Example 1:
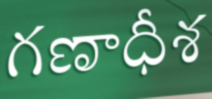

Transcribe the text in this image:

గణాధీశ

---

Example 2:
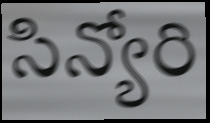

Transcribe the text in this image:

సిన్యోరి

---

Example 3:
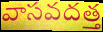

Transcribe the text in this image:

వాసవదత్త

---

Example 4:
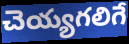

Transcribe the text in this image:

చెయ్యగలిగే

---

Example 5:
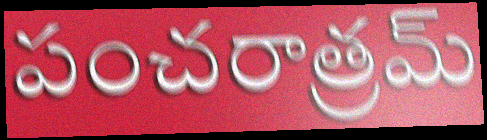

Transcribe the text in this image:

పంచరాత్రమ్